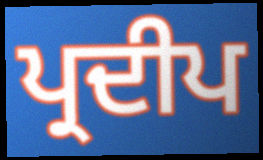
ਪ੍ਰਦੀਪ